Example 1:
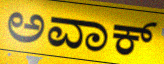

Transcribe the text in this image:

ಅವಾಕ್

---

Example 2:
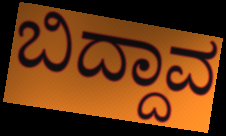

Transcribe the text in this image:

ಬಿದ್ದಾವ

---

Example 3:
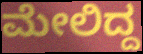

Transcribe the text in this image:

ಮೇಲಿದ್ದ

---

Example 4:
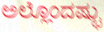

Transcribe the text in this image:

ಅಲ್ಲೊಂದಷ್ಟು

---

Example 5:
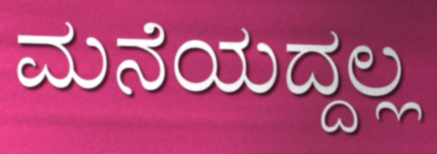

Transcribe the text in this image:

ಮನೆಯದ್ದಲ್ಲ